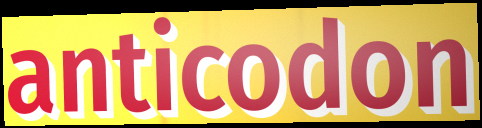
anticodon